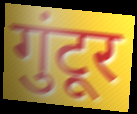
गुंटूर